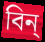
বিন্